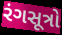
રંગસૂત્રો